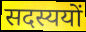
सदस्ययों